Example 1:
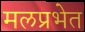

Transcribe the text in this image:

मलप्रभेत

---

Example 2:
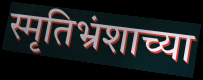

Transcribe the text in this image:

स्मृतिभ्रंशाच्या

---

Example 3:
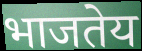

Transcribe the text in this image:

भाजतेय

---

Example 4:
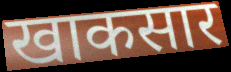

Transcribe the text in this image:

खाकसार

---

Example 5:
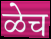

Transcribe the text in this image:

ळेच